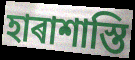
হাৰাশাস্তি